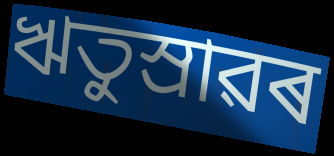
ঋতুস্ৰাৱৰ